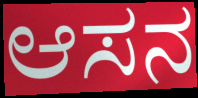
ಆಸನ